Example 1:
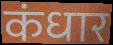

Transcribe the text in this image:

कंधार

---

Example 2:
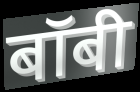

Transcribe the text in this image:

बॉबी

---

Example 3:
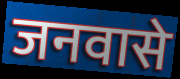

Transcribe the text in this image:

जनवासे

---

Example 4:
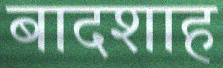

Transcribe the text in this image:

बादशाह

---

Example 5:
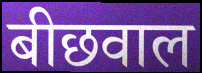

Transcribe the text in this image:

बीछवाल